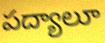
పద్యాలూ